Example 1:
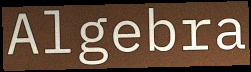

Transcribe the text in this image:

Algebra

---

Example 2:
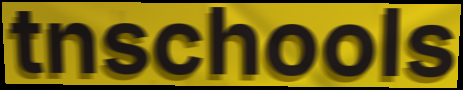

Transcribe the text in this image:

tnschools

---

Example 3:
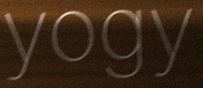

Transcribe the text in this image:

yogy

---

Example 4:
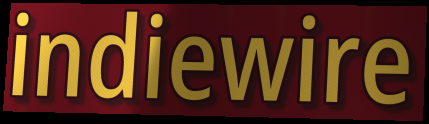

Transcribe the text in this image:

indiewire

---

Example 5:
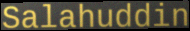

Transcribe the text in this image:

Salahuddin